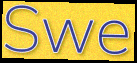
Swe